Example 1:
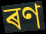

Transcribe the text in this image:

ৰণ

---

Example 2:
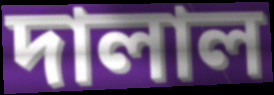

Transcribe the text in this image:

দালাল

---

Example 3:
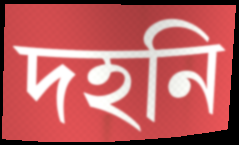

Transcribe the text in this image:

দহনি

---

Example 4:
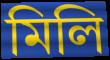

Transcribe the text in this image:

মিলি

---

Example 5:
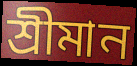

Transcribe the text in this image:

শ্ৰীমান